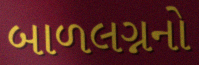
બાળલગ્નનો